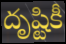
దృష్టికీ